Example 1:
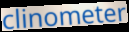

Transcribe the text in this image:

clinometer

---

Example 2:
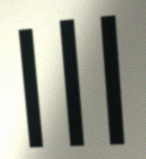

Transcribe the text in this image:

Ill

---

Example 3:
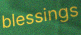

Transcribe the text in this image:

blessings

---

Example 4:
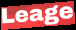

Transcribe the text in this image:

Leage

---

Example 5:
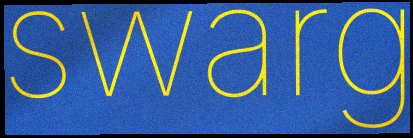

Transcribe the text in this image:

swarg